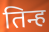
तिन्ह